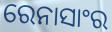
ରେନାସାଂର